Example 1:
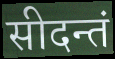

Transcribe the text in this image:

सीदन्तं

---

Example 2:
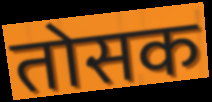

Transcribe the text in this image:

तोसक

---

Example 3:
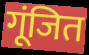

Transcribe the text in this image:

गूंजित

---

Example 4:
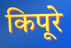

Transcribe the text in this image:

किपूरे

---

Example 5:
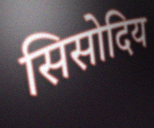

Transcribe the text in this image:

सिसोदिय